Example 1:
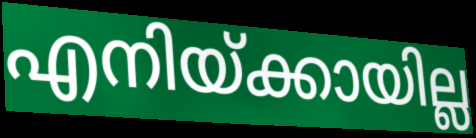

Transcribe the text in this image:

എനിയ്ക്കായില്ല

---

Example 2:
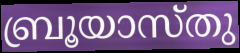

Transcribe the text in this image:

ബ്രൂയാസ്തു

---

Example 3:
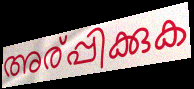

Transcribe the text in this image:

അര്പ്പിക്കുക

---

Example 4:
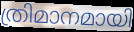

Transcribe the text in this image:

ത്രിമാനമായി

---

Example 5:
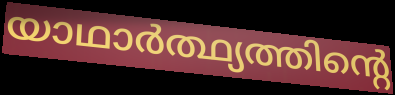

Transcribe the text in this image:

യാഥാർത്ഥ്യത്തിന്റെ